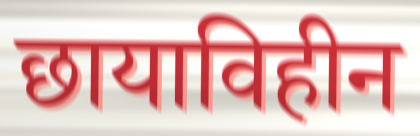
छायाविहीन